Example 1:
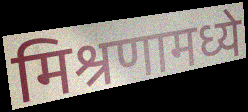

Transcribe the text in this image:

मिश्रणामध्ये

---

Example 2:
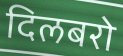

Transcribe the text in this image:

दिलबरो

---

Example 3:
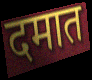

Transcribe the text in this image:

दमात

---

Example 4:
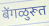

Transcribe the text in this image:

बेंगळुरूत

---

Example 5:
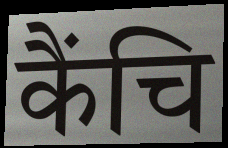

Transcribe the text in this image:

कैंचि